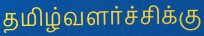
தமிழ்வளர்ச்சிக்கு